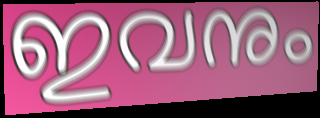
ഇവനും